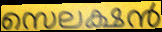
സെലക്ഷൻ